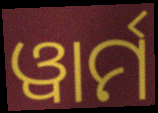
ୱାର୍ମ